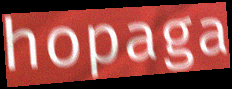
hopaga